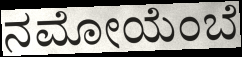
ನಮೋಯೆಂಬೆ